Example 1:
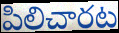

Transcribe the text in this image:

పిలిచారట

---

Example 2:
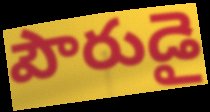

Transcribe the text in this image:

పౌరుడై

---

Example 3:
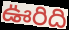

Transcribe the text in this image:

ఊరిది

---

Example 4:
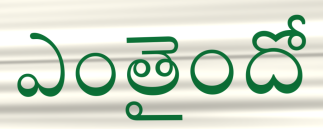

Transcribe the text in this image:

ఎంతైందో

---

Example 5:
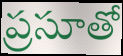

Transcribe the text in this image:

ప్రసూతో